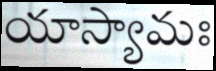
యాస్యామః